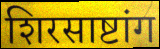
शिरसाष्टांग